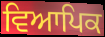
ਵਿਆਪਿਕ